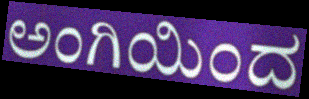
ಅಂಗಿಯಿಂದ